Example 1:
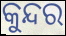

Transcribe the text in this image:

କୁନ୍ଦର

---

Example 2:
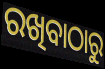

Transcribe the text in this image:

ରଖିବାଠାରୁ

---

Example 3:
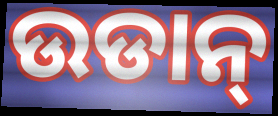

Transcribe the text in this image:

ଉଡାନ୍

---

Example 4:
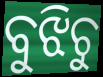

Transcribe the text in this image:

ବୁଝିଚୁ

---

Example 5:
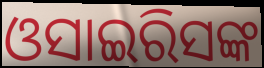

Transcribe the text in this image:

ଓସାଇରିସଙ୍କ